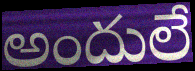
అందులే